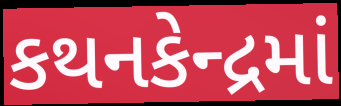
કથનકેન્દ્રમાં